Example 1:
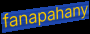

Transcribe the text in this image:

fanapahany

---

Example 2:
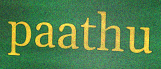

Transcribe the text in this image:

paathu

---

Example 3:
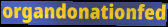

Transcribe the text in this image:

organdonationfed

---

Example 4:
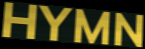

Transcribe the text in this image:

HYMN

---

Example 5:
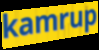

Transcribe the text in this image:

kamrup